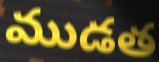
ముడత